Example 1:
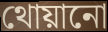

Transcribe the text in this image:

থোয়ানো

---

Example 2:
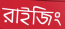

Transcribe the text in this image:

রাইজিং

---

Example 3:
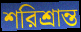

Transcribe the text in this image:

শরিশ্রান্ত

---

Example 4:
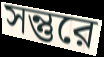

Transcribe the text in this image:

সন্তুরে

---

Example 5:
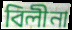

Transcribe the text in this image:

বিলীনা